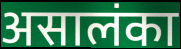
असालंका